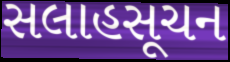
સલાહસૂચન